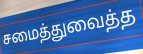
சமைத்துவைத்த